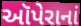
ઑપેરાનાં